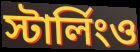
স্টার্লিংও